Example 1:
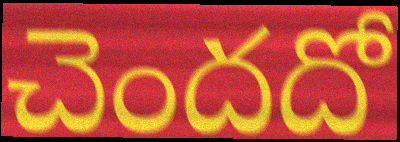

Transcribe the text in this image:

చెందదో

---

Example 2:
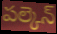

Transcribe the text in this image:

పల్కెన్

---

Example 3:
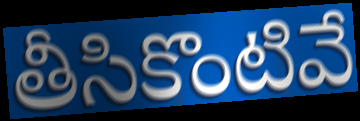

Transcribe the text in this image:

తీసికొంటివే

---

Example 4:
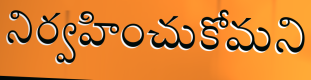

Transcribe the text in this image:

నిర్వహించుకోమని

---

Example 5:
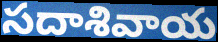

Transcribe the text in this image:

సదాశివాయ